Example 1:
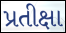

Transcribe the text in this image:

પ્રતીક્ષા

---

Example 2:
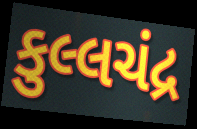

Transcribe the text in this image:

કુલ્લચંદ્ર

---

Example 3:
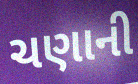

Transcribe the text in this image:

ચણાની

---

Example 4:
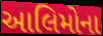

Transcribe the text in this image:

આલિમોના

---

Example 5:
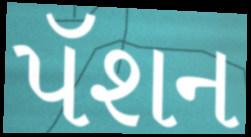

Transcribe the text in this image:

પૅશન